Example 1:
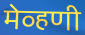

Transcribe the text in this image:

मेव्हणी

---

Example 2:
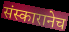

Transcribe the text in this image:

संस्कारानेच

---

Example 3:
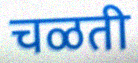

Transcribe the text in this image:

चळती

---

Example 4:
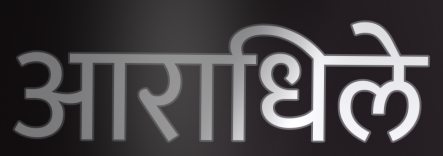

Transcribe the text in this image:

आराधिले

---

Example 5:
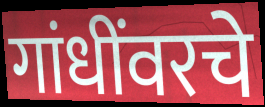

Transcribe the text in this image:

गांधींवरचे